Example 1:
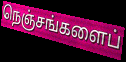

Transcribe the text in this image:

நெஞ்சங்களைப்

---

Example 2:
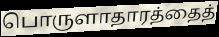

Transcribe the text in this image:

பொருளாதாரத்தைத்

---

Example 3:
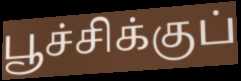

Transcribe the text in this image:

பூச்சிக்குப்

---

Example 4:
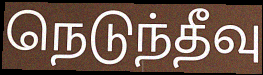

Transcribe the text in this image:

நெடுந்தீவு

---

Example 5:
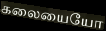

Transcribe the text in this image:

கலையையோ